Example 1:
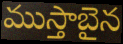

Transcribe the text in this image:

ముస్తాబైన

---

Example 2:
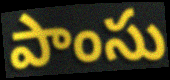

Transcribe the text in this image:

పాంసు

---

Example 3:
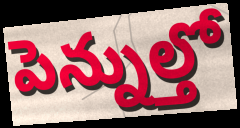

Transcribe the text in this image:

పెన్నుల్తో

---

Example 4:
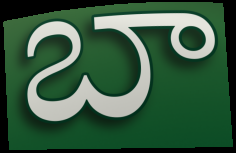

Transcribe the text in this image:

బా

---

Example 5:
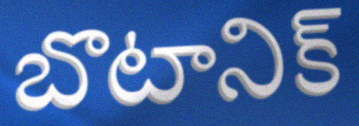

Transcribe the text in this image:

బొటానిక్